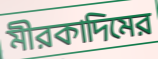
মীরকাদিমের